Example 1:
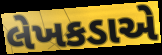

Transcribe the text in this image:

લેખકડાએ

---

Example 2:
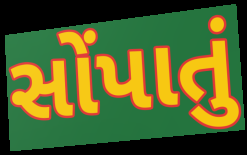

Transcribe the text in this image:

સોંપાતું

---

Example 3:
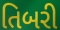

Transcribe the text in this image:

તિબરી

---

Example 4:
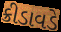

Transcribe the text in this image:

ક્રીડાવડે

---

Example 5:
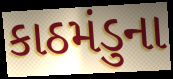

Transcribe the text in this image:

કાઠમંડુના